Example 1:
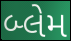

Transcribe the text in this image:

બ્લેમ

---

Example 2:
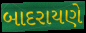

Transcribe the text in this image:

બાદરાયણે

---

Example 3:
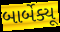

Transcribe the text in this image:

બાર્બેક્યૂ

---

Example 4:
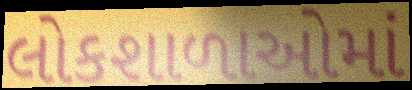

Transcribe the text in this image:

લોકશાળાઓમાં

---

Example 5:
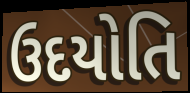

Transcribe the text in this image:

ઉદયોતિ